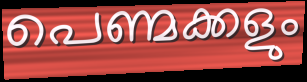
പെണ്മക്കളും